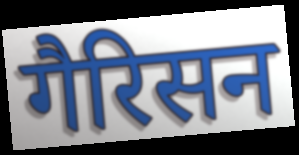
गैरिसन